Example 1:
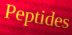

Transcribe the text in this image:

Peptides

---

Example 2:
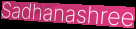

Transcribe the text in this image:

Sadhanashree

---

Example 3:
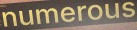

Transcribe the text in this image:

numerous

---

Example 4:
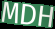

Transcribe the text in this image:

MDH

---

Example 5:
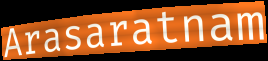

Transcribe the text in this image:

Arasaratnam